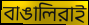
বাঙালিরাই